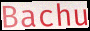
Bachu